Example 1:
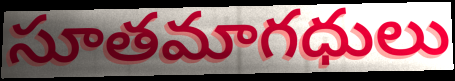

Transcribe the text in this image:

సూతమాగధులు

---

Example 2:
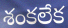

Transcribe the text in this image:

శంకలేక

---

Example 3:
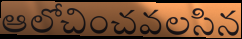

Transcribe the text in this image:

ఆలోచించవలసిన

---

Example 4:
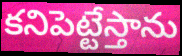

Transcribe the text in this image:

కనిపెట్టేస్తాను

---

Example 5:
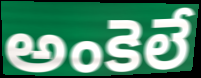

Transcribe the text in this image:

అంకెలే